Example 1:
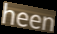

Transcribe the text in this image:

heen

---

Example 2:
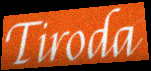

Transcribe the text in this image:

Tiroda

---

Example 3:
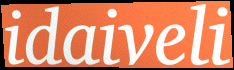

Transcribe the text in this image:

idaiveli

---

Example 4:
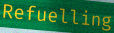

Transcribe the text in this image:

Refuelling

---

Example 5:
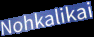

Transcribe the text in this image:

Nohkalikai